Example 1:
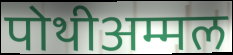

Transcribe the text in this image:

पोथीअम्मल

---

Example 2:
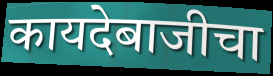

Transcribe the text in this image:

कायदेबाजीचा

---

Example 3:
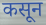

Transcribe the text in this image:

कसून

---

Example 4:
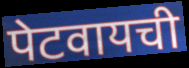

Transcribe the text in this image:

पेटवायची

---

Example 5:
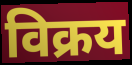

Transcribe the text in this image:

विक्रय